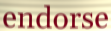
endorse